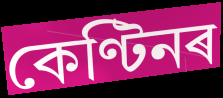
কেণ্টিনৰ